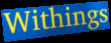
Withings